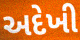
અદેખી